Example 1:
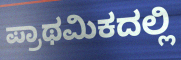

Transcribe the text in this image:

ಪ್ರಾಥಮಿಕದಲ್ಲಿ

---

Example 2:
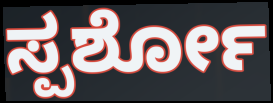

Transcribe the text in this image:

ಸ್ಪರ್ಶೋ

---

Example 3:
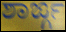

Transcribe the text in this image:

ಶಾರ್ಙ್ಗ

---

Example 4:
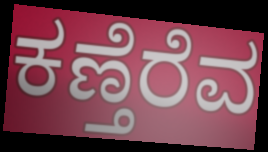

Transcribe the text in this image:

ಕಣ್ತೆರೆವ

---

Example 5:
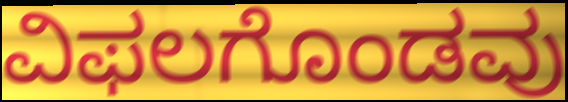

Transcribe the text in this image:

ವಿಫಲಗೊಂಡವು